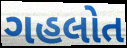
ગહલોત